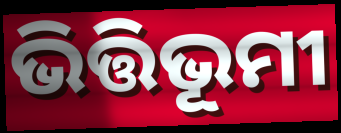
ଭିତ୍ତିଭୂମୀ